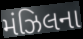
મંઝિલના